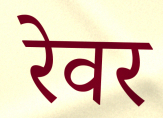
रेवर